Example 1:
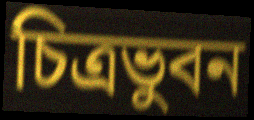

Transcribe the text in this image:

চিত্রভুবন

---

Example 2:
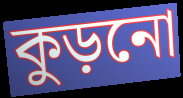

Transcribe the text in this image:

কুড়নো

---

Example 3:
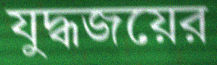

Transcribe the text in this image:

যুদ্ধজয়ের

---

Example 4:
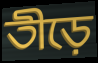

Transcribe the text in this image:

তীড়ে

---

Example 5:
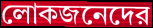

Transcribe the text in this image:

লোকজনেদের